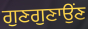
ਗੁਣਗੁਣਾਉਂਣ